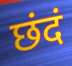
छंदं